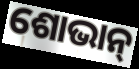
ଶୋଭାନ୍